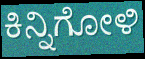
ಕಿನ್ನಿಗೋಳಿ